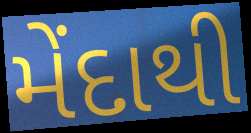
મેંદાથી